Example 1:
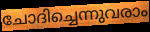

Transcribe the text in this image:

ചോദിച്ചെന്നുവരാം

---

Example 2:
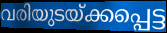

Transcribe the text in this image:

വരിയുടയ്ക്കപ്പെട്ട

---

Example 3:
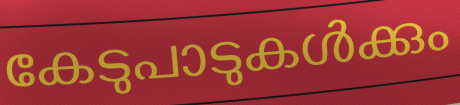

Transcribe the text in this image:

കേടുപാടുകൾക്കും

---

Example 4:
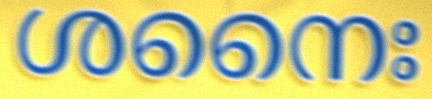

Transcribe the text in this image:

ശനൈഃ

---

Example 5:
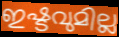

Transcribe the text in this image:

ഇഷ്ടവുമില്ല